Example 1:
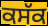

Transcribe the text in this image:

ਕਸੱਕ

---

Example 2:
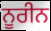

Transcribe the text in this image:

ਨੂਰੀਨ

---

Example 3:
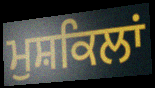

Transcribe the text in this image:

ਮੁਸ਼ਕਿਲਾਂ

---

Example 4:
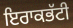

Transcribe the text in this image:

ਇਰਾਕਭੱਟੀ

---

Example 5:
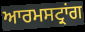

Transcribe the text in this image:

ਆਰਮਸਟ੍ਰਾਂਗ